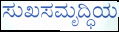
ಸುಖಸಮೃದ್ಧಿಯ